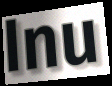
Inu